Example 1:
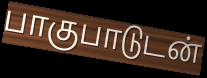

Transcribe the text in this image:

பாகுபாடுடன்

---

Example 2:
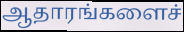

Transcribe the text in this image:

ஆதாரங்களைச்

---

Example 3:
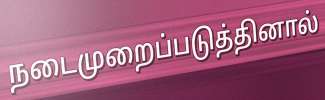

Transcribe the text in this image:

நடைமுறைப்படுத்தினால்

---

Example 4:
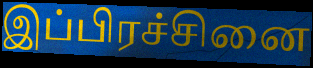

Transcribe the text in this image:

இப்பிரச்சினை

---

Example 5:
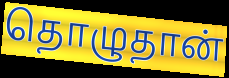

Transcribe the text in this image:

தொழுதான்